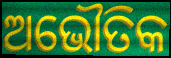
ଅଭୌତିକ